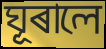
ঘূৰালে